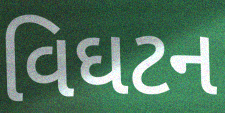
વિઘટન